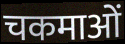
चकमाओं